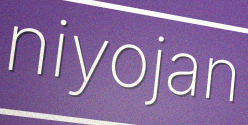
niyojan